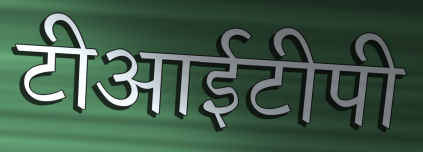
टीआईटीपी